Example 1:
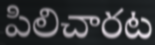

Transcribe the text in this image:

పిలిచారట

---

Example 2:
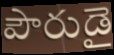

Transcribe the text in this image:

పౌరుడై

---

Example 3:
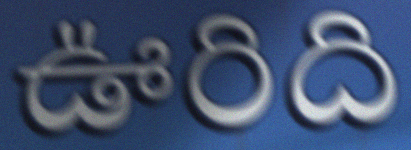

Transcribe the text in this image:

ఊరిది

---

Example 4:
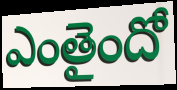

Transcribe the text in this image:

ఎంతైందో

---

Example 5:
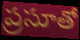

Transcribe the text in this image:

ప్రసూతో